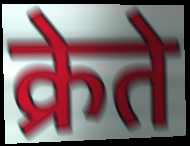
क्रेते